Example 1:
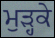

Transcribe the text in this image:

ਮੁੜ੍ਹਕੇ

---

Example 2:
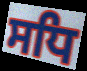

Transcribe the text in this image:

ਸਧਿ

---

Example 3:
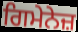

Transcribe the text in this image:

ਗਿਮੇਨੇਜ਼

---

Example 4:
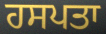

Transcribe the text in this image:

ਹਸਪਤਾ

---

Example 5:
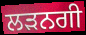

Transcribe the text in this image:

ਲੜਨਗੀ